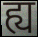
ह्य